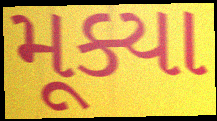
મૂક્યા